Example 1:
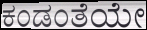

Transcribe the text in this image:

ಕಂಡಂತೆಯೇ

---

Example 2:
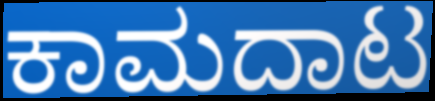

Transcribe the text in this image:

ಕಾಮದಾಟ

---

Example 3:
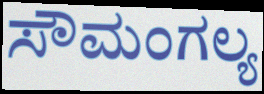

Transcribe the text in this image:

ಸೌಮಂಗಲ್ಯ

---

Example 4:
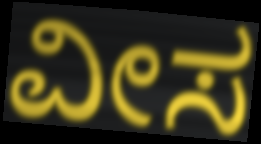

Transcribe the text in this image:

ವೀಸ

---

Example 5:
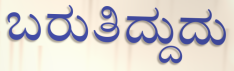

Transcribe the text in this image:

ಬರುತಿದ್ದುದು